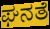
ಘನತೆ